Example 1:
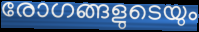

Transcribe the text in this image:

രോഗങ്ങളുടെയും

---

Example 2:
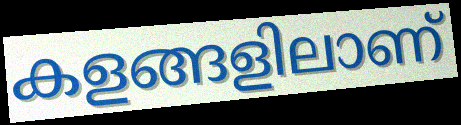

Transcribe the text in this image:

കളങ്ങളിലാണ്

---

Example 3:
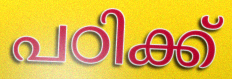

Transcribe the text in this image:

പഠിക്ക്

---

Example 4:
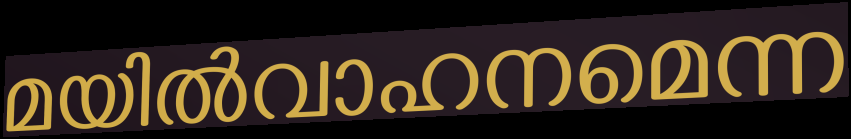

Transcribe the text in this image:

മയിൽവാഹനമെന്ന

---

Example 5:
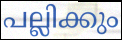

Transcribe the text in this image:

പല്ലിക്കും